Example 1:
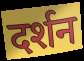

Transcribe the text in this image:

दर्शन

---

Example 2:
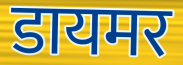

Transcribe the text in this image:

डायमर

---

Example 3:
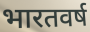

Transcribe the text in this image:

भारतवर्ष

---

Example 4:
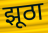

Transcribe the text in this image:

झूठा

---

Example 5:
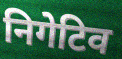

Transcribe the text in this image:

निगेटिव